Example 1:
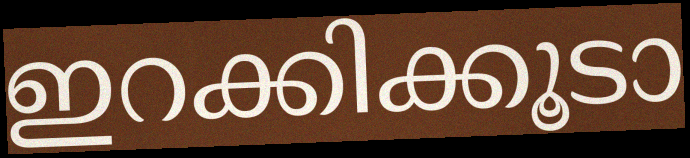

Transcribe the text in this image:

ഇറക്കിക്കൂടാ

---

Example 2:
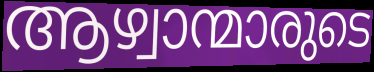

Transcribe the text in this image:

ആഴ്വാന്മാരുടെ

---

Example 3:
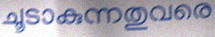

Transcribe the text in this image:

ചൂടാകുന്നതുവരെ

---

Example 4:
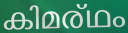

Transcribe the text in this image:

കിമര്ഥം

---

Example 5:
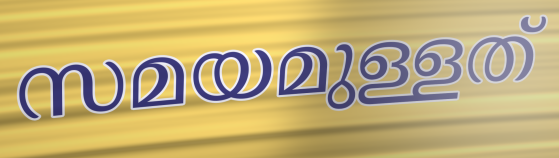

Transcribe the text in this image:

സമയമുള്ളത്